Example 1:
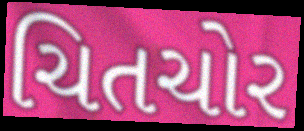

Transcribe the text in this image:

ચિતચોર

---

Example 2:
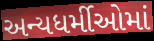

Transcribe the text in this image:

અન્યધર્મીઓમાં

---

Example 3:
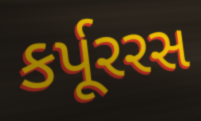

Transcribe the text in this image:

કર્પૂરરસ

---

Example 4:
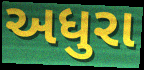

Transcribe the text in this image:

અધુરા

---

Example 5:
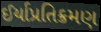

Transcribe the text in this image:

ઈર્યાપ્રતિક્રમણ